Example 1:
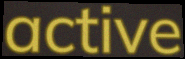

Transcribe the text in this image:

active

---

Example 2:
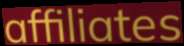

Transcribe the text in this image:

affiliates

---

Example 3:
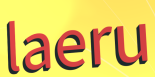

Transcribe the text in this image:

laeru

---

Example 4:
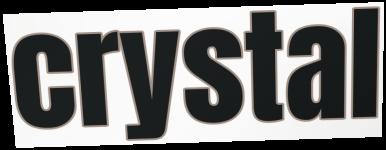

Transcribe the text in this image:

crystal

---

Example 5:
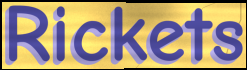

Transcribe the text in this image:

Rickets